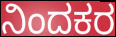
ನಿಂದಕರ